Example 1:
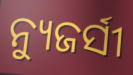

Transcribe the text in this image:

ନ୍ୟୁଜର୍ସୀ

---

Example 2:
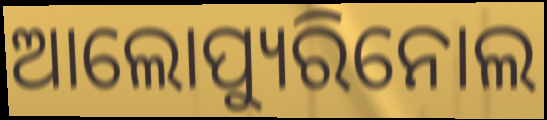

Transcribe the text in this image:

ଆଲୋପ୍ୟୁରିନୋଲ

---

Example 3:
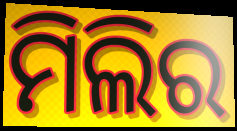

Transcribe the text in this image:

ମିଲିର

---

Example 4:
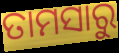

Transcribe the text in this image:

ତାମସାରୁ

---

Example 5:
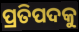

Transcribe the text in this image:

ପ୍ରତିପଦକୁ